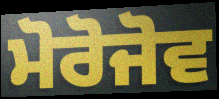
ਮੋਰੋਜੋਵ